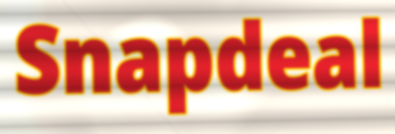
Snapdeal